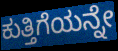
ಕುತ್ತಿಗೆಯನ್ನೇ